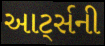
આર્ટ્સની